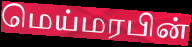
மெய்மரபின்